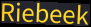
Riebeek